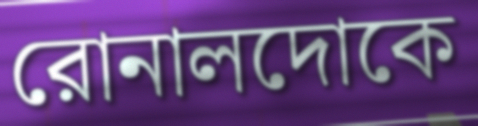
রোনালদোকে